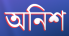
অনিশ